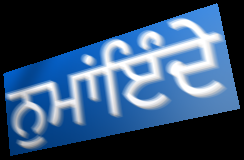
ਨੁਮਾਂਇੰਦੇ